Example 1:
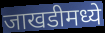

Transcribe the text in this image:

जाखडीमध्ये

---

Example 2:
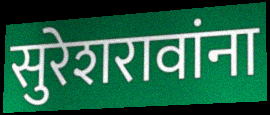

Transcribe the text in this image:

सुरेशरावांना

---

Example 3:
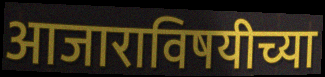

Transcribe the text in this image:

आजाराविषयीच्या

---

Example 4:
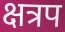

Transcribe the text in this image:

क्षत्रप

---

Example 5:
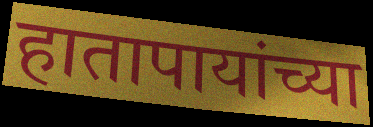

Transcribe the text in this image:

हातापायांच्या